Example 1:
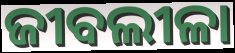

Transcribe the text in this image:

ଜୀବଲୀଳା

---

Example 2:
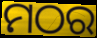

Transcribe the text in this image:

ମଠର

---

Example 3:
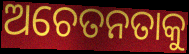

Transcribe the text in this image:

ଅଚେତନତାକୁ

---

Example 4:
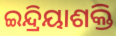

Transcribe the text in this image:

ଇନ୍ଦ୍ରିୟାଶକ୍ତି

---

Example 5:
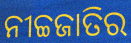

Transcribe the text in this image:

ନୀଚ୍ଚଜାତିର